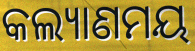
କଲ୍ୟାଣମୟ